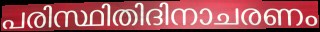
പരിസ്ഥിതിദിനാചരണം